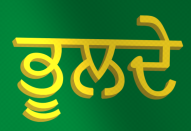
ਭੂਲਦੇ